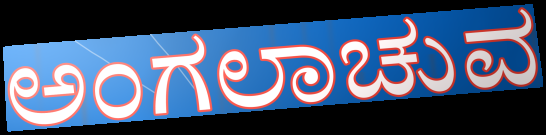
ಅಂಗಲಾಚುವ